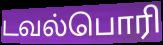
டவல்பொரி